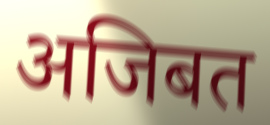
अजिबत